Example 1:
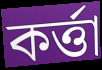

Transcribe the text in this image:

কর্ত্তা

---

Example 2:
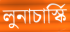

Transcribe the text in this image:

লুনাচার্স্কি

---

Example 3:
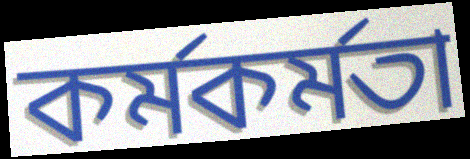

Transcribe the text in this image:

কর্মকর্মতা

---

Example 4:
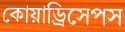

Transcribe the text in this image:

কোয়াড্রিসেপস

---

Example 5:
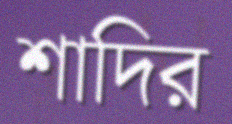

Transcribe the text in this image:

শাদির